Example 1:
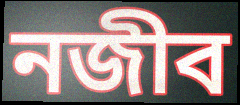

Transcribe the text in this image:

নজীব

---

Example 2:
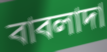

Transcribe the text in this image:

বাবলাদা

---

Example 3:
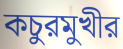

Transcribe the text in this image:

কচুরমুখীর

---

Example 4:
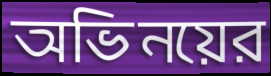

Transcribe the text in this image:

অভিনয়ের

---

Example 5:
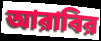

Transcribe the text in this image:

আরাবির